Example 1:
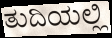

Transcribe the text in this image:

ತುದಿಯಲ್ಲಿ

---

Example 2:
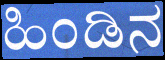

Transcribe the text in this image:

ಹಿಂಡಿನ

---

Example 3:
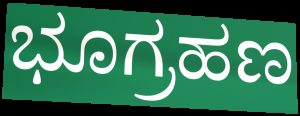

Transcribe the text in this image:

ಭೂಗ್ರಹಣ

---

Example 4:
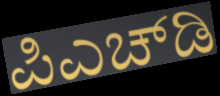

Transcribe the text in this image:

ಪಿಎಚ್‌ಡಿ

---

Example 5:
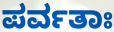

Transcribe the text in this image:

ಪರ್ವತಾಃ